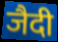
जैदी